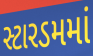
સ્ટારડમમાં